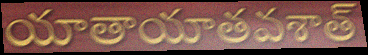
యాతాయాతవశాత్